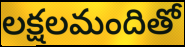
లక్షలమందితో